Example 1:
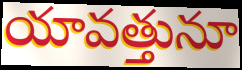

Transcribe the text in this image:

యావత్తునూ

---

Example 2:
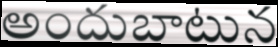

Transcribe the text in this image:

అందుబాటున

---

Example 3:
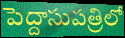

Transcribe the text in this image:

పెద్దాసుపత్రిలో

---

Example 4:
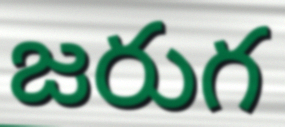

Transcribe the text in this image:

జరుగ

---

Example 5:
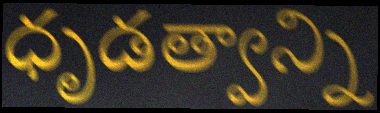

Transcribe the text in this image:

ధృడత్వాన్ని